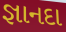
જ્ઞાનદા